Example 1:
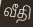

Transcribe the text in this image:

வீதி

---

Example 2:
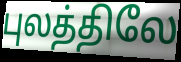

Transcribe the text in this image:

புலத்திலே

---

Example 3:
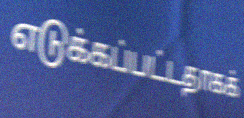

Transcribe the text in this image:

எடுக்கப்பட்டதாகக்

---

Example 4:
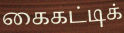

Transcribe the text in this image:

கைகட்டிக்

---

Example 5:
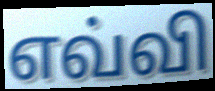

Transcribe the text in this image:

எவ்வி